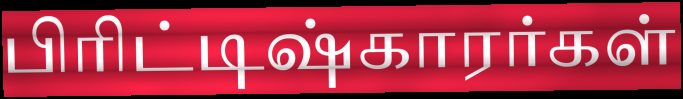
பிரிட்டிஷ்காரர்கள்